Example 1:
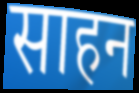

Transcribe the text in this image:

साहन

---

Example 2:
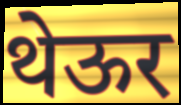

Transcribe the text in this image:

थेऊर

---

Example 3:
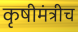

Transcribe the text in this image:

कृषीमंत्रीच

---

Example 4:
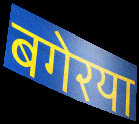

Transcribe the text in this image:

बगेरया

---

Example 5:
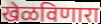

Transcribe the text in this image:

खेळविणारा